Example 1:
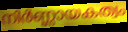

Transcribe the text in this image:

നിർണ്ണായകത്വം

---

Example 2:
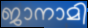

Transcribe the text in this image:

ജാനാമി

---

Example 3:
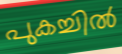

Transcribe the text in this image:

പുകച്ചിൽ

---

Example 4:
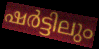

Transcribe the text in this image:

ഷർട്ടിലും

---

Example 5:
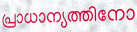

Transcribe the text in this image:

പ്രാധാന്യത്തിനോ